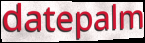
datepalm